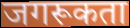
जगरूकता